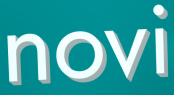
novi